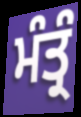
ਮੰਤ੍ਰੰ